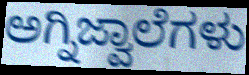
ಅಗ್ನಿಜ್ವಾಲೆಗಳು